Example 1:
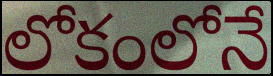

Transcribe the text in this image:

లోకంలోనే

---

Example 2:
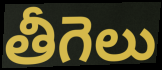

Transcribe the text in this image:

తీగెలు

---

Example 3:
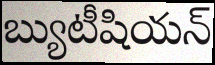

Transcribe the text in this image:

బ్యుటీషియన్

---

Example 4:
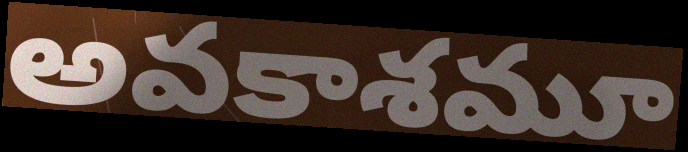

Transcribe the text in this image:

అవకాశమూ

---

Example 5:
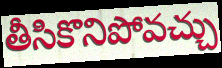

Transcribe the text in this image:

తీసికొనిపోవచ్చు